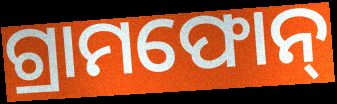
ଗ୍ରାମଫୋନ୍